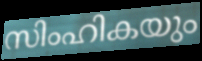
സിംഹികയും